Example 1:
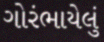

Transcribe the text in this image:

ગોરંભાયેલું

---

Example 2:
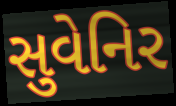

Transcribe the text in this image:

સુવેનિર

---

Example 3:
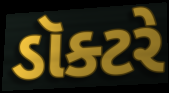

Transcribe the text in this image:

ડૉક્ટરે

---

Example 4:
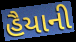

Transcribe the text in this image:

હૈયાની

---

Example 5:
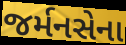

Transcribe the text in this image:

જર્મનસેના